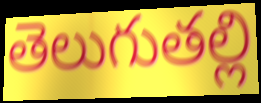
తెలుగుతల్లి